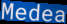
Medea